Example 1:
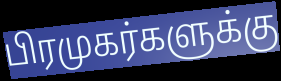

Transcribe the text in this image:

பிரமுகர்களுக்கு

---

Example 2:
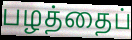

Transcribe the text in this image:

பழத்தைப்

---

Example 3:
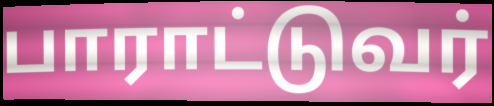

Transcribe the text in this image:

பாராட்டுவர்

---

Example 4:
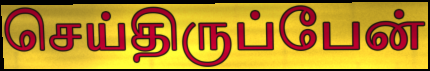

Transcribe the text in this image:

செய்திருப்பேன்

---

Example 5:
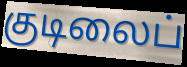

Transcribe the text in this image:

குடிலைப்